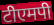
टीएमपी